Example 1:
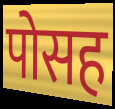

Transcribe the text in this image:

पोसह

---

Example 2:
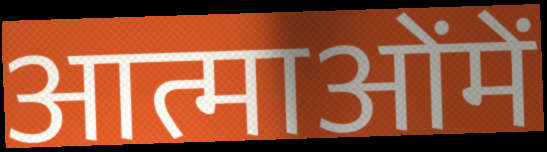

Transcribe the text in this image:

आत्माओंमें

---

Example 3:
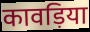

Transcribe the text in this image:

कावड़िया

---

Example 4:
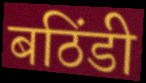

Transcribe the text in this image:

बठिंडी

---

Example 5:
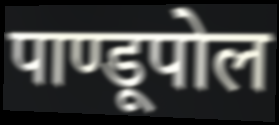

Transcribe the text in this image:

पाण्डूपोल